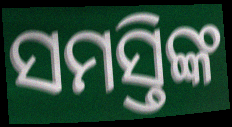
ସମସ୍ତିଙ୍କ